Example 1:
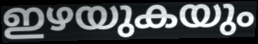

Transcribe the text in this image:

ഇഴയുകയും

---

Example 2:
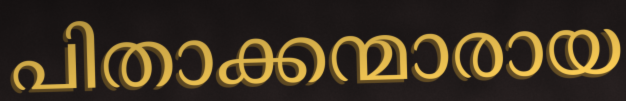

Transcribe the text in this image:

പിതാക്കന്മാരായ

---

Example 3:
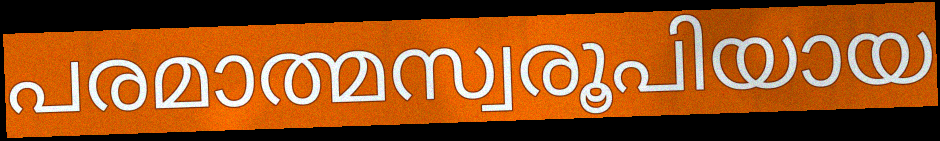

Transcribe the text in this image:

പരമാത്മസ്വരൂപിയായ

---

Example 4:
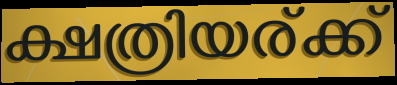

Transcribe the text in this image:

ക്ഷത്രിയര്ക്ക്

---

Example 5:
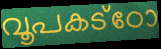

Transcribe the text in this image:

വൂപകട്ഠോ